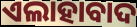
ଏଲାହାବାଦ